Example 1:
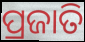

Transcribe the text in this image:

ପ୍ରଜାତି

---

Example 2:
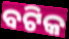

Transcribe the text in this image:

ବଟିକ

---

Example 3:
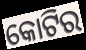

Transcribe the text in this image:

କୋଟିର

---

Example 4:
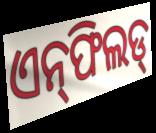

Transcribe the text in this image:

ଏନ୍‌ଫିଲଡ୍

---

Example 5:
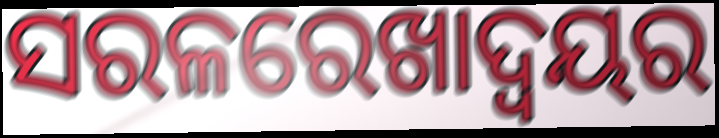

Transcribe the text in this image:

ସରଳରେଖାଦ୍ବୟର